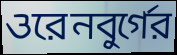
ওরেনবুর্গের